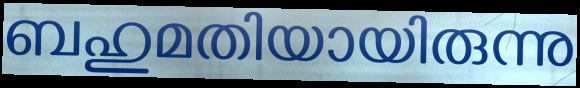
ബഹുമതിയായിരുന്നു